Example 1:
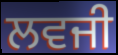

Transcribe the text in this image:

ਲਵਜੀ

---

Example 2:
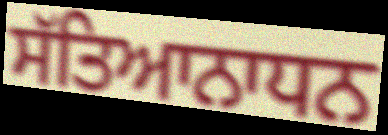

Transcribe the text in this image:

ਸੱਤਿਆਨਾਧਨ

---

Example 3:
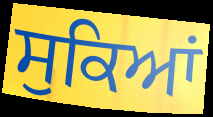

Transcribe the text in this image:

ਸੁਕਿਆਂ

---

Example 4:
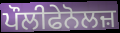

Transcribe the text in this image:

ਪੌਲੀਫੇਨੋਲਜ਼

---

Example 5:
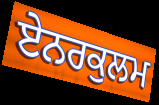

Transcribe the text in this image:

ਏਨਰਕੁਲਮ